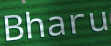
Bharu